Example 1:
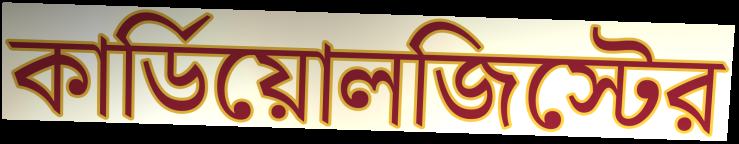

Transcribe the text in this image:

কার্ডিয়োলজিস্টের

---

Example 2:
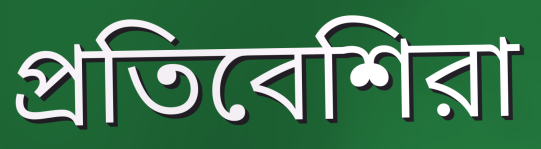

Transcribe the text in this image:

প্রতিবেশিরা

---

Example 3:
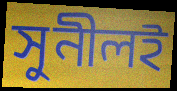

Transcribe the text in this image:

সুনীলই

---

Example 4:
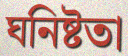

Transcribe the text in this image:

ঘনিষ্টতা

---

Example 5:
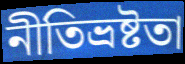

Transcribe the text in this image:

নীতিভ্রষ্টতা